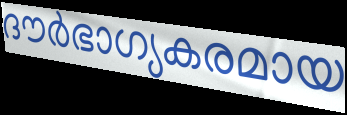
ദൗർഭാഗ്യകരമായ